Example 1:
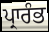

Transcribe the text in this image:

ਪ੍ਰਾਰੰਭ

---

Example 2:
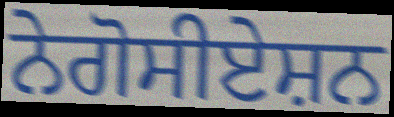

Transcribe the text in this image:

ਨੇਗੋਸੀਏਸ਼ਨ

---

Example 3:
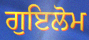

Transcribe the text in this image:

ਗੁਇਲੋਮ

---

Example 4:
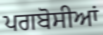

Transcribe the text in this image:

ਪਗਬੋਸੀਆਂ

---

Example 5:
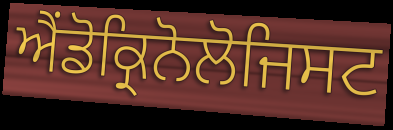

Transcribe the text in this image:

ਐਂਡੋਕ੍ਰਿਨੋਲੋਜਿਸਟ